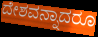
ದೇಶವನ್ನಾದರೂ